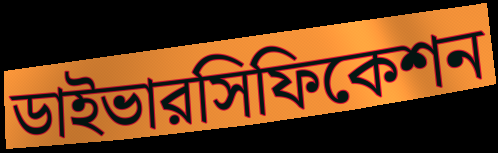
ডাইভারসিফিকেশন